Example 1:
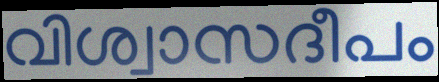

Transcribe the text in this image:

വിശ്വാസദീപം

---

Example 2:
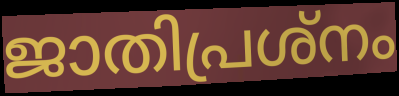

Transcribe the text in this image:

ജാതിപ്രശ്നം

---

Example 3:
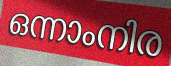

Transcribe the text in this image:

ഒന്നാംനിര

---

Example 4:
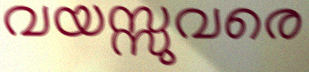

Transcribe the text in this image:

വയസ്സുവരെ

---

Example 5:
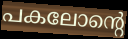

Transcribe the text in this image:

പകലോന്റെ